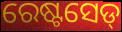
ରେଷ୍ଟସେଡ୍